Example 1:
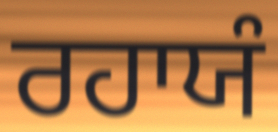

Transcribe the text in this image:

ਰਹਾਯੰ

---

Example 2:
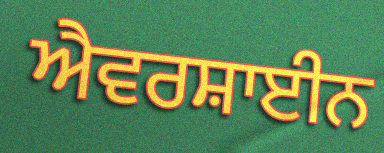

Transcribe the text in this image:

ਐਵਰਸ਼ਾਈਨ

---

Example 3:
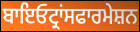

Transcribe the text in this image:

ਬਾਇਓਟ੍ਰਾਂਸਫਾਰਮੇਸ਼ਨ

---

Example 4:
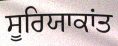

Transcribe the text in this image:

ਸੂਰਿਯਾਕਾਂਤ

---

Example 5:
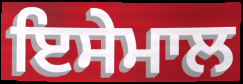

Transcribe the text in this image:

ਇਸੇਮਾਲ